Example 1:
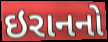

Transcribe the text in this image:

ઇરાનનો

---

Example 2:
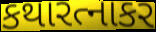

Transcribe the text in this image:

કથારત્નાકર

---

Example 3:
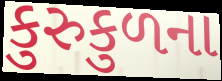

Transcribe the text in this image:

કુરુકુળના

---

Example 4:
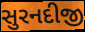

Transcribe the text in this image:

સુરનદીજી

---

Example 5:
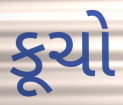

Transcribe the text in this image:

કૂચો